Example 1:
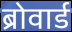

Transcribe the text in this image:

ब्रोवार्ड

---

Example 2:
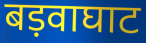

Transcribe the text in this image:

बड़वाघाट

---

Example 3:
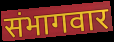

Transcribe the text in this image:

संभागवार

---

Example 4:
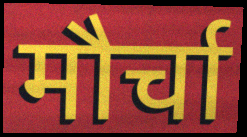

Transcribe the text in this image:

मौर्चा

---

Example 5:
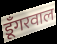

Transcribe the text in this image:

डूँगरवाल